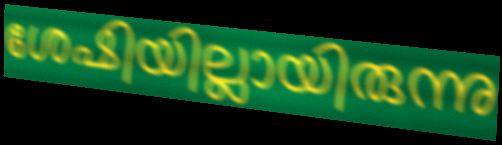
ശേഷിയില്ലായിരുന്നു